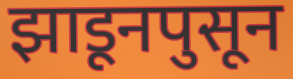
झाडूनपुसून